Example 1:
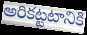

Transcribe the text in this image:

అరికట్టటానికి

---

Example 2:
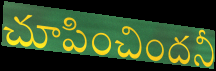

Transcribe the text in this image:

చూపించిందనీ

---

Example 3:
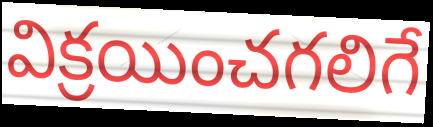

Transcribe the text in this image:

విక్రయించగలిగే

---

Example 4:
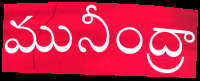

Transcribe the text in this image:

మునీంద్రా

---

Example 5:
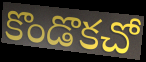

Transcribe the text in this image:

కొండొకచో